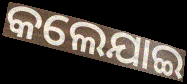
କଲେଯାଇ